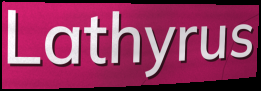
Lathyrus